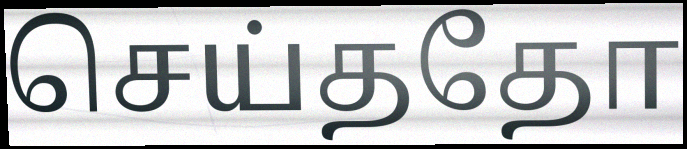
செய்ததோ